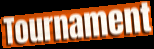
Tournament